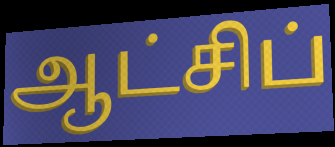
ஆட்சிப்